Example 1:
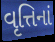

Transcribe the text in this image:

વૃત્તિનાં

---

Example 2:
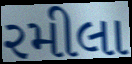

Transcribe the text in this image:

રમીલા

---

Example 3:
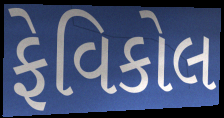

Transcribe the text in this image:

ફેવિકોલ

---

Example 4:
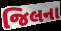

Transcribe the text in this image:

જિલના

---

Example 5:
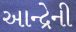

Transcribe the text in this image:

આન્દ્રેની